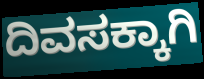
ದಿವಸಕ್ಕಾಗಿ